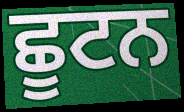
ਛੂਟਨ